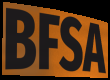
BFSA